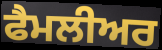
ਫੈਮਲੀਅਰ